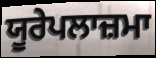
ਯੂਰੇਪਲਾਜ਼ਮਾ